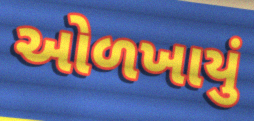
ઓળખાયું